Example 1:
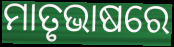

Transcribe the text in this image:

ମାତୃଭାଷରେ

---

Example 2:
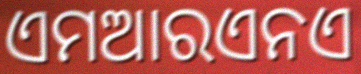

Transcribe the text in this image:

ଏମଆରଏନଏ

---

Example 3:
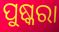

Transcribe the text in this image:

ପୁଷ୍କରା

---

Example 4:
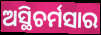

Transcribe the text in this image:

ଅସ୍ଥିଚର୍ମସାର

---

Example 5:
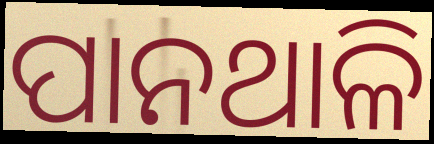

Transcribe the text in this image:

ପାନଥାଳି